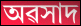
অৱসাদ